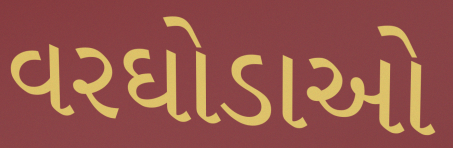
વરઘોડાઓ